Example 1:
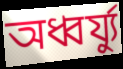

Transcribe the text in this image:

অধ্বর্য্যু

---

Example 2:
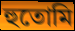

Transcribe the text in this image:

হুতোমি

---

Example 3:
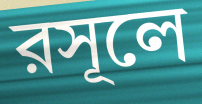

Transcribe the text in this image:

রসূলে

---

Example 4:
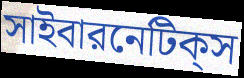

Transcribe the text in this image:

সাইবারনেটিক্‌স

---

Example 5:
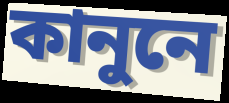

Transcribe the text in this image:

কানুনে